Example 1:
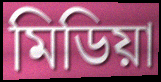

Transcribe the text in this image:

মিডিয়া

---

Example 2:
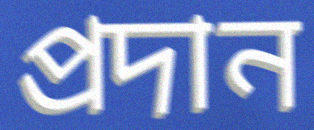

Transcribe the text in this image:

প্ৰদান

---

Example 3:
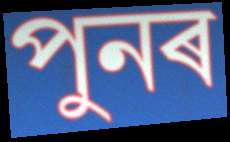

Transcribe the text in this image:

পুনৰ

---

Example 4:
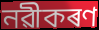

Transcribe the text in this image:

নৱীকৰণ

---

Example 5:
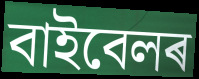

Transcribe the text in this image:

বাইবেলৰ